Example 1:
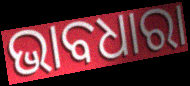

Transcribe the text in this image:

ଭାବଧାରା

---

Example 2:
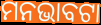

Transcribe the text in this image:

ମନଭାବଟା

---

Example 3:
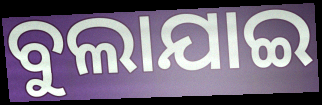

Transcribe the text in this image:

ବୁଲାଯାଇ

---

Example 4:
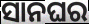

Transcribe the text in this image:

ସାନଘର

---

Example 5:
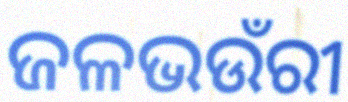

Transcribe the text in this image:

ଜଳଭଉଁରୀ